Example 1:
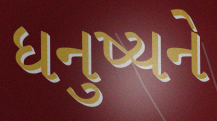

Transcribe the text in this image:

ધનુષ્યને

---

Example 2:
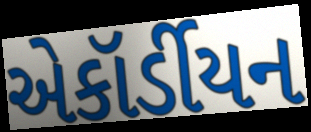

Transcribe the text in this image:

એકૉર્ડીયન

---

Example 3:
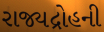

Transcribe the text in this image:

રાજ્યદ્રોહની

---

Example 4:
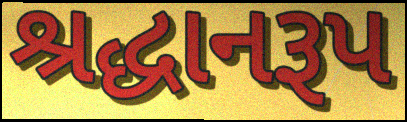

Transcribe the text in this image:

શ્રદ્ધાનરૂપ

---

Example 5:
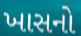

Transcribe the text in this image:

ખાસનો